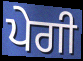
ਪੇਗੀ